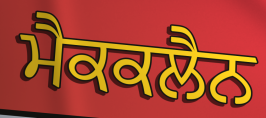
ਮੈਕਕਲੈਨ